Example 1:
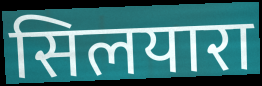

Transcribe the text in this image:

सिलयारा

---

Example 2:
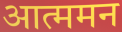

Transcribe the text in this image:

आत्ममन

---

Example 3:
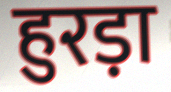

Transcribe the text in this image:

हुरड़ा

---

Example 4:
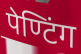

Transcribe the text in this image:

पेण्टिंग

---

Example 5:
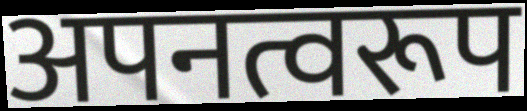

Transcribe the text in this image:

अपनत्वरूप